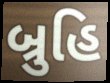
બ્રુહિ